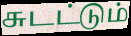
சுடட்டும்